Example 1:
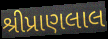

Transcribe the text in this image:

શ્રીપ્રાણલાલ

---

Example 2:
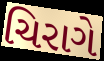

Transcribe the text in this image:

ચિરાગે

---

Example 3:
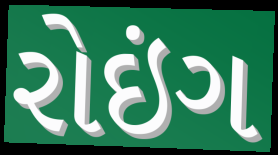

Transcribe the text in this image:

રોઇંગ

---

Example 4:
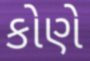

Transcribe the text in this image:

કોણે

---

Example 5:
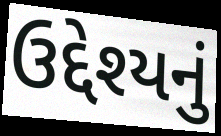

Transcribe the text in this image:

ઉદ્દેશ્યનું